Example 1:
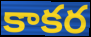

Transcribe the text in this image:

కాకర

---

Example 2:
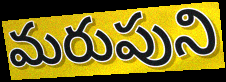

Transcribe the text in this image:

మరుపుని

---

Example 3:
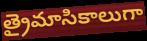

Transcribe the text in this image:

త్రైమాసికాలుగా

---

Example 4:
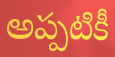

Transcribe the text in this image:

అప్పటికీ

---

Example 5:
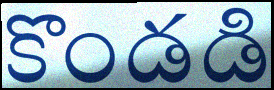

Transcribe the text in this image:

కొండడి